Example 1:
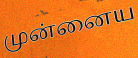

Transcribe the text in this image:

முன்னைய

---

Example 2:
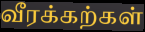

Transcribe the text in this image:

வீரக்கற்கள்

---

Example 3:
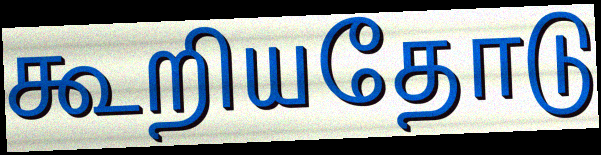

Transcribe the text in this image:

கூறியதோடு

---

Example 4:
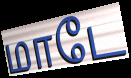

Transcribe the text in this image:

மாடே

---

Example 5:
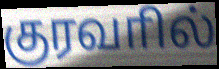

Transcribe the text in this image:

குரவரில்